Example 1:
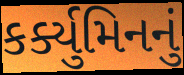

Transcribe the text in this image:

કર્ક્યુમિનનું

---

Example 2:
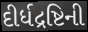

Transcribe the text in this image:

દીર્ધદ્રષ્ટિની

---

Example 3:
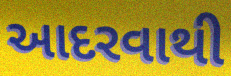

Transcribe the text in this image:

આદરવાથી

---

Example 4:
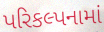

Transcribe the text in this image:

પરિકલ્પનામાં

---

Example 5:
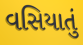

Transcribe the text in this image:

વસિયાતું